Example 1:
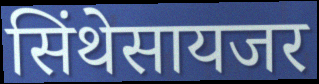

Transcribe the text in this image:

सिंथेसायजर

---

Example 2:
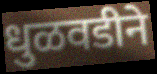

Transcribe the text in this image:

धुळवडीने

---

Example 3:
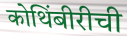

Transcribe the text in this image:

कोथिंबीरीची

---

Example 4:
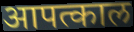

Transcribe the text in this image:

आपत्काल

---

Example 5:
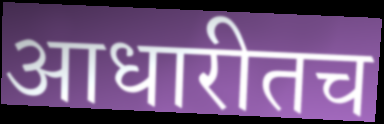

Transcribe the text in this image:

आधारीतच